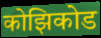
कोझिकोड